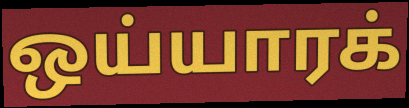
ஒய்யாரக்